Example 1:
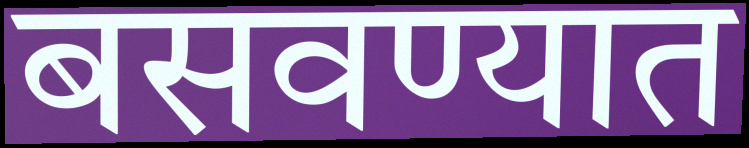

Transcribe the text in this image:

बसवण्यात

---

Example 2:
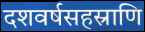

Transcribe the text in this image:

दशवर्षसहस्राणि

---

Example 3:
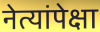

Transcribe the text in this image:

नेत्यांपेक्षा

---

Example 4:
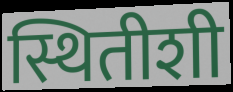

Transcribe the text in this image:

स्थितीशी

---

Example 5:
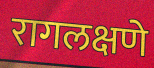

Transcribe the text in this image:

रागलक्षणे